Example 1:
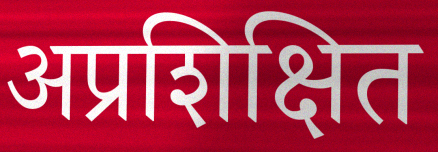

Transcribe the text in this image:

अप्रशिक्षित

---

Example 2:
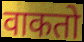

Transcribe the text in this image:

वाकतो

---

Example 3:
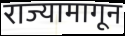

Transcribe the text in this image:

राज्यामागून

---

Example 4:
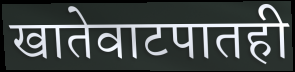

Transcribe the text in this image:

खातेवाटपातही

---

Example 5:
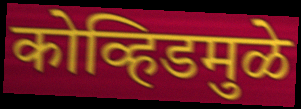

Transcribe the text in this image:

कोव्हिडमुळे